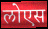
लोएस